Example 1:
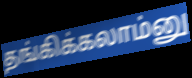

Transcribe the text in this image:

தங்கிக்கலாம்னு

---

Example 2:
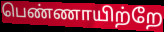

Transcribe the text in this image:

பெண்ணாயிற்றே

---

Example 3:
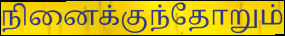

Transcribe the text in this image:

நினைக்குந்தோறும்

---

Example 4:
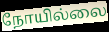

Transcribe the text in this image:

நோயில்லை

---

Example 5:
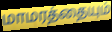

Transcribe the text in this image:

மாமரத்தையும்